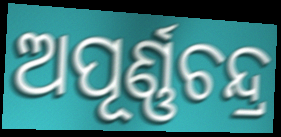
ଅପୂର୍ଣ୍ଣଚନ୍ଦ୍ର